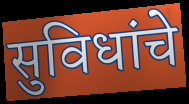
सुविधांचे